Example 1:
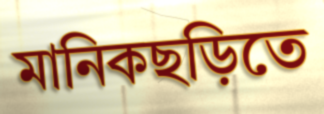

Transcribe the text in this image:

মানিকছড়িতে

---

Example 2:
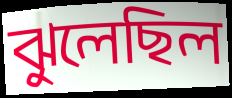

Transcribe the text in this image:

ঝুলেছিল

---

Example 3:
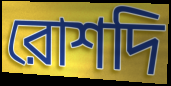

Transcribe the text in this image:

রোশদি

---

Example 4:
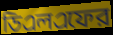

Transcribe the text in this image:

ডিএলএফের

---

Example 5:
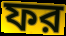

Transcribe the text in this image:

ফর